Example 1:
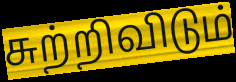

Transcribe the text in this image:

சுற்றிவிடும்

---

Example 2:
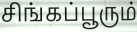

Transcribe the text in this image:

சிங்கப்பூரும்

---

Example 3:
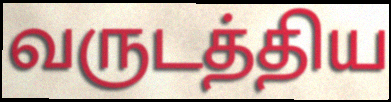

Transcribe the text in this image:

வருடத்திய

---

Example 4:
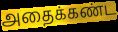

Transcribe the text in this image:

அதைக்கண்ட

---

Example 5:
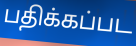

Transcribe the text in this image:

பதிக்கப்பட